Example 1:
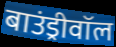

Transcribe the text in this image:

बाउंड्रीवॉल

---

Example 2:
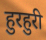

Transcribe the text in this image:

हुरहुरी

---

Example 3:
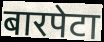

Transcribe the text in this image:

बारपेटा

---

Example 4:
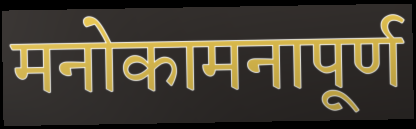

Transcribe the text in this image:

मनोकामनापूर्ण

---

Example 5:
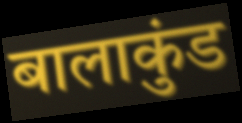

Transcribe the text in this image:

बालाकुंड